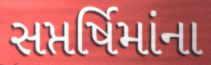
સપ્તર્ષિમાંના